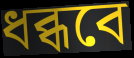
ধব্ধবে